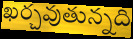
ఖర్చవుతున్నది